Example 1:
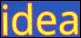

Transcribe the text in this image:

idea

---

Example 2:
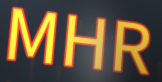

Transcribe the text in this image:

MHR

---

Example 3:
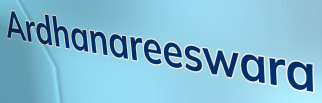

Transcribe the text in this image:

Ardhanareeswara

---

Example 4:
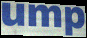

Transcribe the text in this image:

ump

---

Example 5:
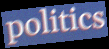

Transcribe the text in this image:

politics